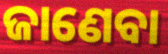
ଜାଣେବା